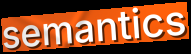
semantics